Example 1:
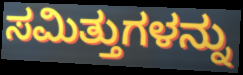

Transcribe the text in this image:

ಸಮಿತ್ತುಗಳನ್ನು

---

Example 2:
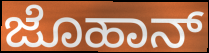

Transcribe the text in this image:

ಜೊಹಾನ್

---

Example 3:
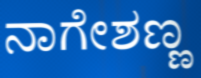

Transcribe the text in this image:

ನಾಗೇಶಣ್ಣ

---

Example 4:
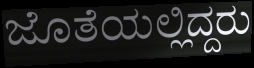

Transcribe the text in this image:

ಜೊತೆಯಲ್ಲಿದ್ದರು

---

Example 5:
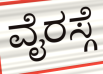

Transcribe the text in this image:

ವೈರಸ್ಗೆ